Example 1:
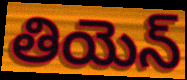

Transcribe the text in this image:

తియెన్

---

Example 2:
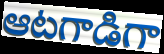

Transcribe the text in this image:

ఆటగాడిగా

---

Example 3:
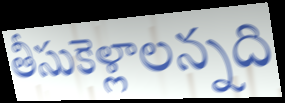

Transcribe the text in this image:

తీసుకెళ్లాలన్నది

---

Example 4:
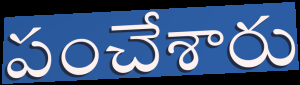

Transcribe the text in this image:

పంచేశారు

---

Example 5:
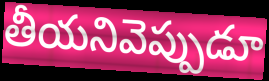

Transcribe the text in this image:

తీయనివెప్పుడూ